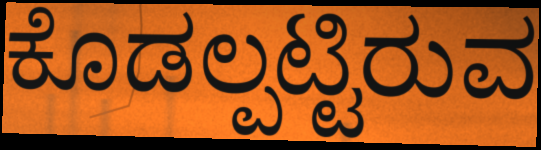
ಕೊಡಲ್ಪಟ್ಟಿರುವ